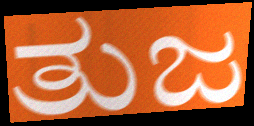
ತುಜ